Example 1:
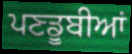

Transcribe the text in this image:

ਪਣਡੂਬੀਆਂ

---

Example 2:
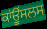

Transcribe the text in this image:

ਕਾਂਊਂਸਲਸ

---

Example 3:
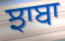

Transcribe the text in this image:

ਝਾਬਾ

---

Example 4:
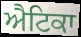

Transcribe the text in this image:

ਐਟਿਕਾ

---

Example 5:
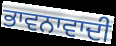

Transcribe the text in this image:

ਭਾਵਨਾਵਾਦੀ